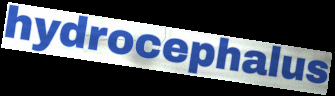
hydrocephalus